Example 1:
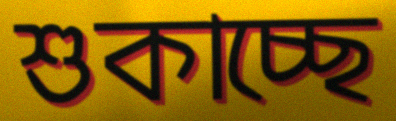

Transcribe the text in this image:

শুকাচ্ছে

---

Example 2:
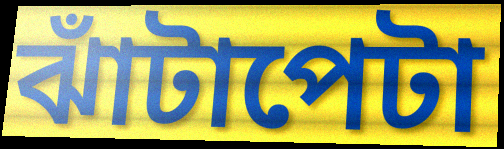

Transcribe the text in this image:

ঝাঁটাপেটা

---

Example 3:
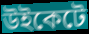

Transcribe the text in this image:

উইকেটে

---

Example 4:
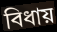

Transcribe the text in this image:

বিধায়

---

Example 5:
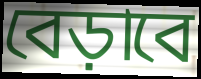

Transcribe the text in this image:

বেড়াবে